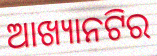
ଆଖ୍ୟାନଟିର